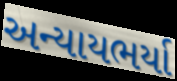
અન્યાયભર્યા